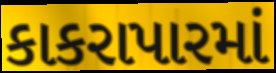
કાકરાપારમાં